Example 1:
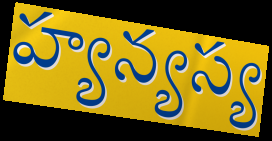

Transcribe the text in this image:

హ్యన్యస్య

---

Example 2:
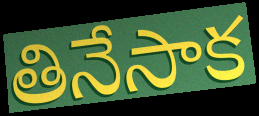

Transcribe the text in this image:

తినేసాక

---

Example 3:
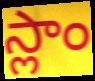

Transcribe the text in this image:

స్లాం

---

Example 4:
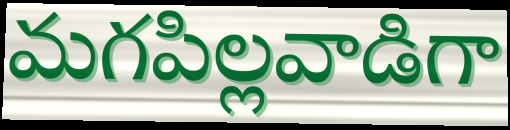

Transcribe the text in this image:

మగపిల్లవాడిగా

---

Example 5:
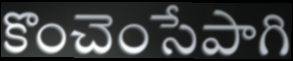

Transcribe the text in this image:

కొంచెంసేపాగి